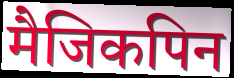
मैजिकपिन